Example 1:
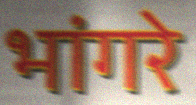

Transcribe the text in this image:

भांगरे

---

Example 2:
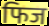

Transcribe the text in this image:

फिज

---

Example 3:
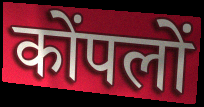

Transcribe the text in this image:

कोंपलों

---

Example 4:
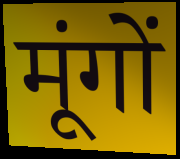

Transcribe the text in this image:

मूंगों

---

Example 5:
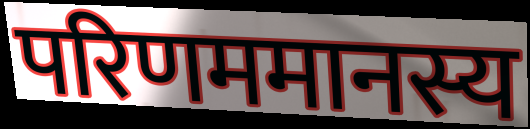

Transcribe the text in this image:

परिणममानस्य